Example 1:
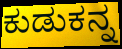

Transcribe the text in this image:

ಕುಡುಕನ್ನ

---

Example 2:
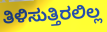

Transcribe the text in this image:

ತಿಳಿಸುತ್ತಿರಲಿಲ್ಲ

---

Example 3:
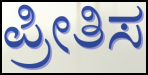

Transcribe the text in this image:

ಪ್ರೀತಿಸ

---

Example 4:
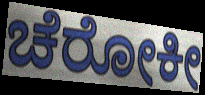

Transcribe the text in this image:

ಚೆರೋಕೀ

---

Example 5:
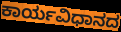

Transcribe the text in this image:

ಕಾರ್ಯವಿಧಾನದ